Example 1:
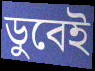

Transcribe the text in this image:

ডুবেই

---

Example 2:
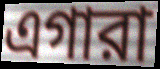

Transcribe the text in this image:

এগারা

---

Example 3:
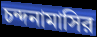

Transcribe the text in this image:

চন্দনামাসির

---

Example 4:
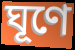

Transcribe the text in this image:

ঘূণে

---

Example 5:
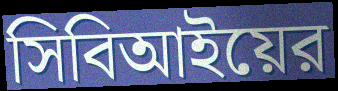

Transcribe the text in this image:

সিবিআইয়ের